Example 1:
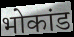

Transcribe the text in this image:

भोकांड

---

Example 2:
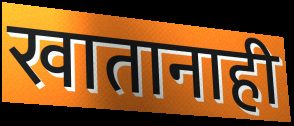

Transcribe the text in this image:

खातानाही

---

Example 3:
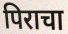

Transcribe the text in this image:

पिराचा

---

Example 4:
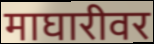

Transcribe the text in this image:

माघारीवर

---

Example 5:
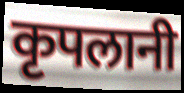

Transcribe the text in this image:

कृपलानी